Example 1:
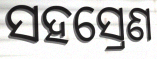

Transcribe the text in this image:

ସହସ୍ରେଣ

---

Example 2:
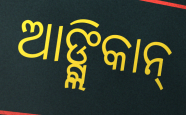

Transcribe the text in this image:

ଆଙ୍ଗ୍ଲିକାନ୍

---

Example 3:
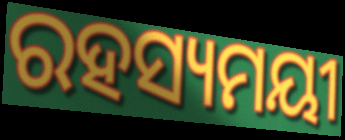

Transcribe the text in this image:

ରହସ୍ୟମୟୀ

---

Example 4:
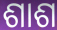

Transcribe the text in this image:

ଶାଶ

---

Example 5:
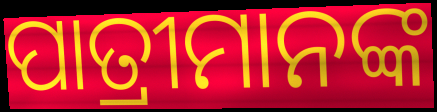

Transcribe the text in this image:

ପାତ୍ରୀମାନଙ୍କ